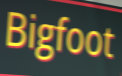
Bigfoot